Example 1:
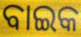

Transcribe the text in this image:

ବାଇକ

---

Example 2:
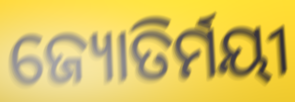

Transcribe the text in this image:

ଜ୍ୟୋତିର୍ମୟୀ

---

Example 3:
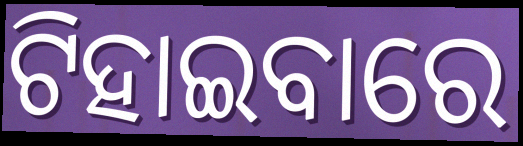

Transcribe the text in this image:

ଟିହାଇବାରେ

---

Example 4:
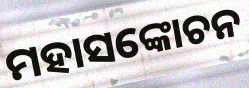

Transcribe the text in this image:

ମହାସଙ୍କୋଚନ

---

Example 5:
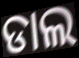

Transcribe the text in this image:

ଡାଲ